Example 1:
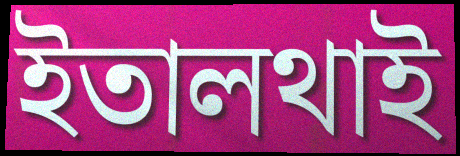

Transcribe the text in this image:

ইতালথাই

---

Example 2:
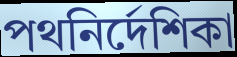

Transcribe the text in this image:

পথনির্দেশিকা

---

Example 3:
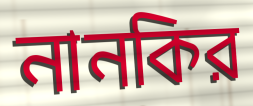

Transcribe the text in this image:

নানকির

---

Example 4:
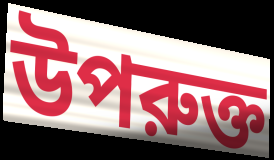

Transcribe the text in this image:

উপরুক্ত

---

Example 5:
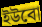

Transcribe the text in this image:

ইউবো